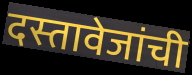
दस्तावेजांची